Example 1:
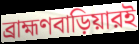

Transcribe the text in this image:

ব্রাহ্মণবাড়িয়ারই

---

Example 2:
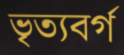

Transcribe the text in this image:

ভৃত্যবর্গ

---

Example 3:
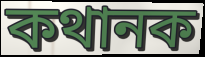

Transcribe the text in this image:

কথানক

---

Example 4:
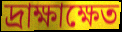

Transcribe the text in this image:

দ্রাক্ষাক্ষেত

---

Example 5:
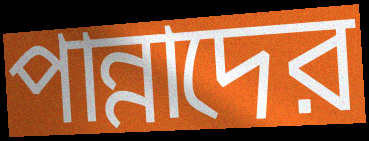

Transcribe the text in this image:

পান্নাদের